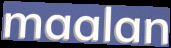
maalan